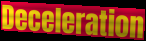
Deceleration